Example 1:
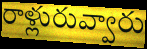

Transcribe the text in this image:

రాళ్లురువ్వారు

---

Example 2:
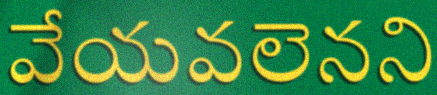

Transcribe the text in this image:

వేయవలెనని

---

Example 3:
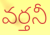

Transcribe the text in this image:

వర్తనీ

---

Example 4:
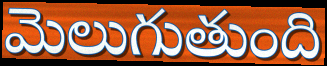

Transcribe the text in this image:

మెలుగుతుంది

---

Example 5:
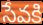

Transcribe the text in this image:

సేవకి